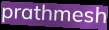
prathmesh